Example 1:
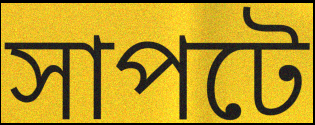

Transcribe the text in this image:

সাপটে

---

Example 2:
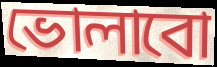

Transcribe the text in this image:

ভোলাবো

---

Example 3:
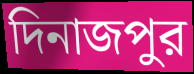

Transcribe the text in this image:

দিনাজপুর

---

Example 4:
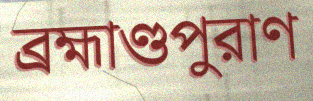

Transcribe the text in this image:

ব্রহ্মাণ্ডপুরাণ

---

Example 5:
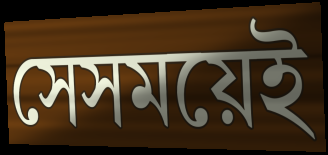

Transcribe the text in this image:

সেসময়েই